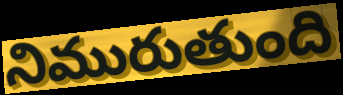
నిమురుతుంది